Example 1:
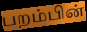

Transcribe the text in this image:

பறம்பின்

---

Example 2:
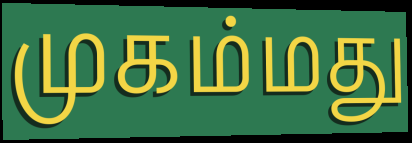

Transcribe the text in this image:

முகம்மது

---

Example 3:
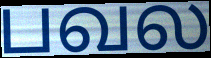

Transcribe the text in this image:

பவல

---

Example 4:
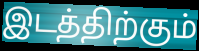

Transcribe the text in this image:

இடத்திற்கும்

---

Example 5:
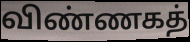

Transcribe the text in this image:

விண்ணகத்